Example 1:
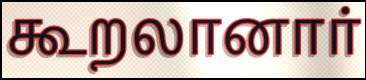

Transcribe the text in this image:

கூறலானார்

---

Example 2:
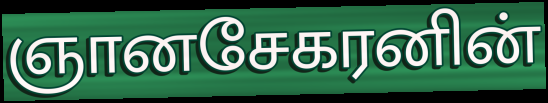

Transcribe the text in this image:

ஞானசேகரனின்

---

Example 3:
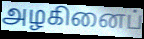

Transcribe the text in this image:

அழகினைப்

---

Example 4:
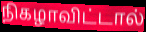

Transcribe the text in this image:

நிகழாவிட்டால்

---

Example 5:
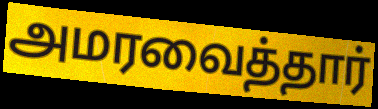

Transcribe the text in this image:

அமரவைத்தார்